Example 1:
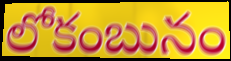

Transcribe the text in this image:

లోకంబునం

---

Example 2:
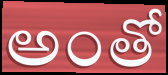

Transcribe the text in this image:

అంతో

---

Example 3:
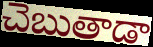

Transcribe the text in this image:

చెబుతాడా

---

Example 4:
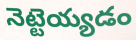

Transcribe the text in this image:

నెట్టెయ్యడం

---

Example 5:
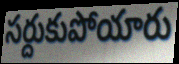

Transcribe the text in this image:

సర్దుకుపోయారు